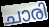
ചാരി